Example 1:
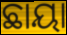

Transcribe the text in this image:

ଛାୟା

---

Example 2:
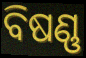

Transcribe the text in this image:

ବିଷଣ୍ଣ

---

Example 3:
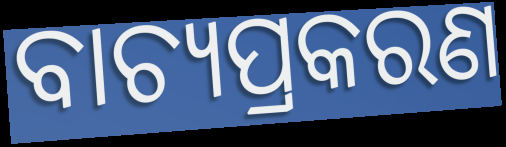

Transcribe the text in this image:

ବାଚ୍ୟପ୍ରକରଣ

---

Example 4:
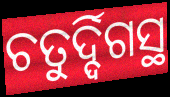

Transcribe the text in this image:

ଚତୁର୍ଦ୍ଦିଗସ୍ଥ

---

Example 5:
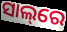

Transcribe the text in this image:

ସାଲ୍‌ରେ